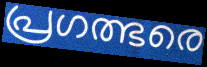
പ്രഗത്ഭരെ